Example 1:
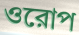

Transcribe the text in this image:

ওরোপ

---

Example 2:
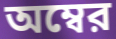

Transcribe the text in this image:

অম্বের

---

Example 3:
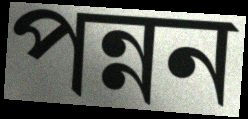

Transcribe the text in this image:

পন্নন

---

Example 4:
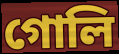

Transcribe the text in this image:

গোলি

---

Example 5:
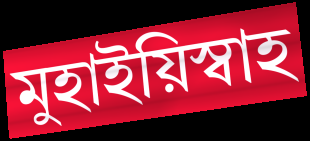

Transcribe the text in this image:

মুহাইয়িস্বাহ